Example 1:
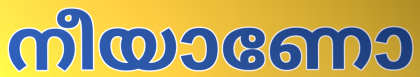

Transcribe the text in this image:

നീയാണോ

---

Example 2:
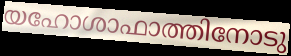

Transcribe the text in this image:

യഹോശാഫാത്തിനോടു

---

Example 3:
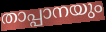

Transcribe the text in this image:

താപ്പാനയും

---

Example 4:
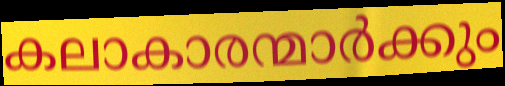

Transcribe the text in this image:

കലാകാരന്മാർക്കും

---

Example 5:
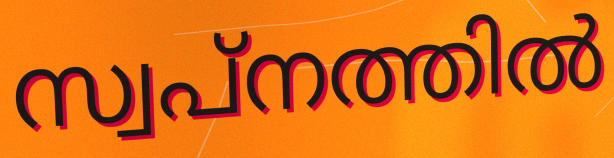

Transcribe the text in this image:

സ്വപ്നത്തിൽ